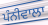
ਪੰਨੀਵਾਲਾ